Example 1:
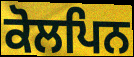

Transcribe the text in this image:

ਕੋਲਪਿਨ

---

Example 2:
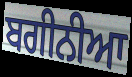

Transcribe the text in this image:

ਬਗੀਨੀਆ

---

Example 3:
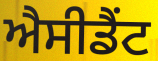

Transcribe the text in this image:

ਐਸੀਡੈਂਟ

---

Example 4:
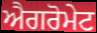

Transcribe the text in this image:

ਐਗਰੋਮੇਟ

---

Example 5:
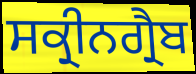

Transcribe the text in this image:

ਸਕ੍ਰੀਨਗ੍ਰੈਬ